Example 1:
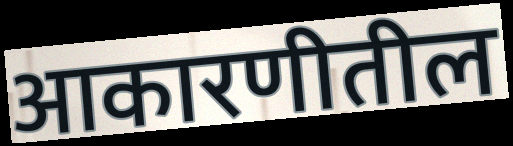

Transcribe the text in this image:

आकारणीतील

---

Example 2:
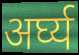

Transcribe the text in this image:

अर्घ्य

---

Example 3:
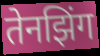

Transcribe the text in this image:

तेनझिंग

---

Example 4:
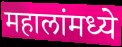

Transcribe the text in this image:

महालांमध्ये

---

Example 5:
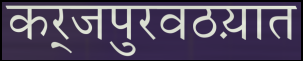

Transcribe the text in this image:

कर्जपुरवठय़ात